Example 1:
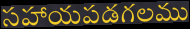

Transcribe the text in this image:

సహాయపడగలము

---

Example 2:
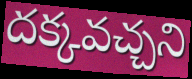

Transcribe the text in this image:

దక్కవచ్చని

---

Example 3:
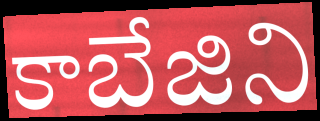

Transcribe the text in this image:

కాబేజిని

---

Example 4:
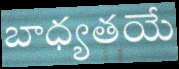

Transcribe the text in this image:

బాధ్యతయే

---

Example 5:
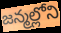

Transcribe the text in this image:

జన్మల్లోని